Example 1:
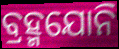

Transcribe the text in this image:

ବ୍ରହ୍ମଯୋନି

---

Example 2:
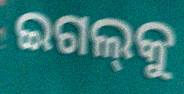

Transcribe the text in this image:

ଇଗଲ୍‌କୁ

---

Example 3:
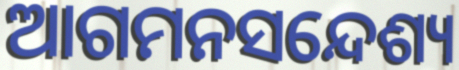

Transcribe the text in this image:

ଆଗମନସନ୍ଦେଶ୍ୟ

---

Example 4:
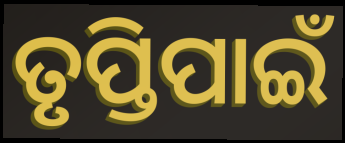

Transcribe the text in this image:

ତୃପ୍ତିପାଇଁ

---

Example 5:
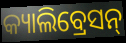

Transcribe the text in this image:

କ୍ୟାଲିବ୍ରେସନ୍